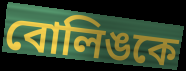
বোলিঙকে